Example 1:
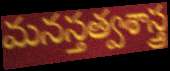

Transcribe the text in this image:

మనస్తత్వశాస్త్ర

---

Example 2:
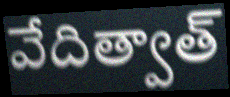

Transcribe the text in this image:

వేదిత్వాత్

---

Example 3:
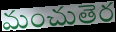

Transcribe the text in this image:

మంచుతెర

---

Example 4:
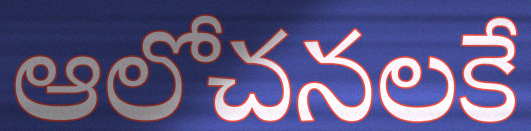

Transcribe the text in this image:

ఆలోచనలకే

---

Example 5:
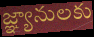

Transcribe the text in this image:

జ్ఞ్యానులకు